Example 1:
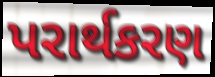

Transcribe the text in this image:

પરાર્થકરણ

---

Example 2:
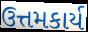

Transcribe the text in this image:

ઉત્તમકાર્ય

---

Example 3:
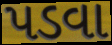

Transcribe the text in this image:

પડવા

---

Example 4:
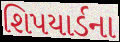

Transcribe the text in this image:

શિપયાર્ડના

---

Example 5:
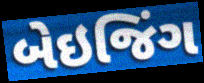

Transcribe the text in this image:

બેઇજિંગ